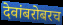
देवांबरोबरच